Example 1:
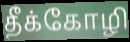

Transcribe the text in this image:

தீக்கோழி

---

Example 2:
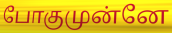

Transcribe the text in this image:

போகுமுன்னே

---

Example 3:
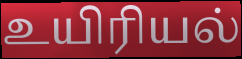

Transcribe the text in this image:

உயிரியல்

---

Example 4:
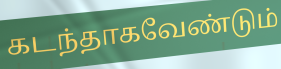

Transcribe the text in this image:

கடந்தாகவேண்டும்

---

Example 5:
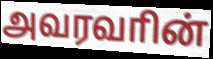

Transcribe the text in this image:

அவரவரின்